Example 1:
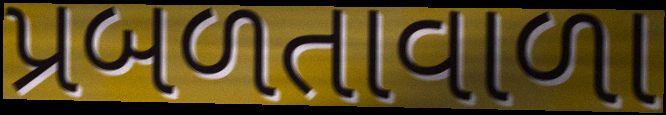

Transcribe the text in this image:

પ્રબળતાવાળા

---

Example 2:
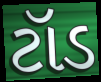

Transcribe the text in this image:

ટૉડ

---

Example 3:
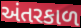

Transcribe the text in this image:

અંતરકાળ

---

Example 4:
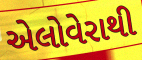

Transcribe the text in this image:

એલોવેરાથી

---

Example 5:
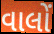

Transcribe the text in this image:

વાલોં